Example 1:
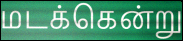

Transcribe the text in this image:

மடக்கென்று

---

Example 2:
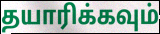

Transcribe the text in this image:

தயாரிக்கவும்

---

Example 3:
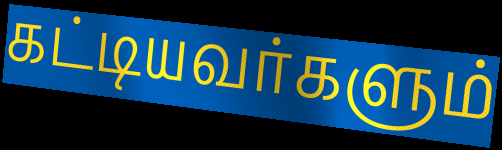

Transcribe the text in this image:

கட்டியவர்களும்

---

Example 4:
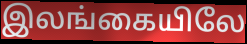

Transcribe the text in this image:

இலங்கையிலே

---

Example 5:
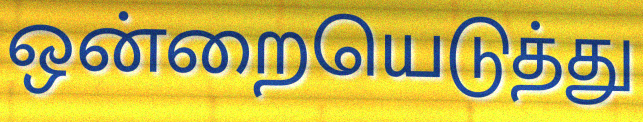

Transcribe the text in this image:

ஒன்றையெடுத்து